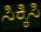
ಸಿಕ್ಕಿಸಿ